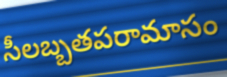
సీలబ్బతపరామాసం